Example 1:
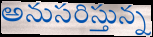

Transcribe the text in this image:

అనుసరిస్తున్న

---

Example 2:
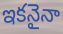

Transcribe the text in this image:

ఇకనైనా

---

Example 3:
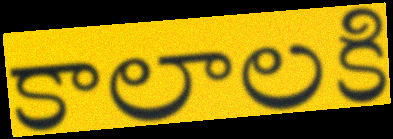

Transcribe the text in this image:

కాలాలకి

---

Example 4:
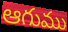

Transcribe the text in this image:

ఆగుము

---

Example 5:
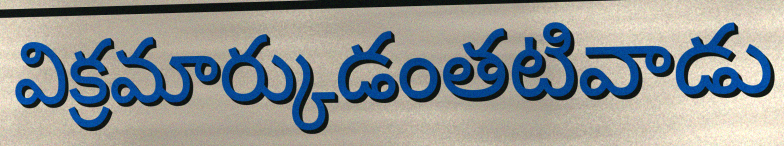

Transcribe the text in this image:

విక్రమార్కుడంతటివాడు